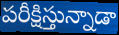
పరీక్షిస్తున్నాడా